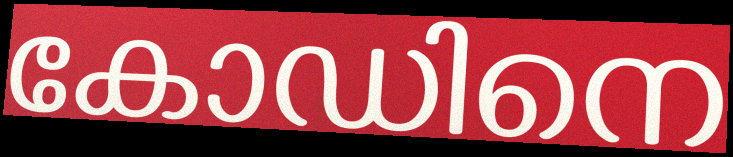
കോഡിനെ